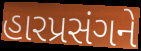
હારપ્રસંગને